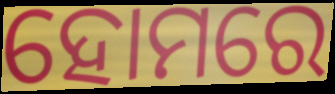
ହୋମରେ